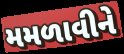
મમળાવીને